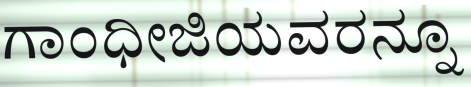
ಗಾಂಧೀಜಿಯವರನ್ನೂ